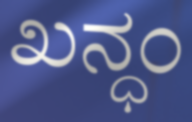
ಖನ್ಧಂ